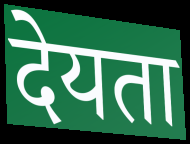
देयता